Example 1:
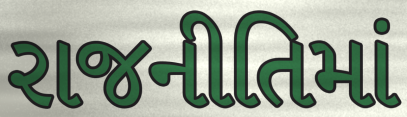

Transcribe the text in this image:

રાજનીતિમાં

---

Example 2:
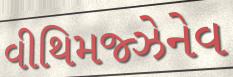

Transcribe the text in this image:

વીથિમજ્ઝેનેવ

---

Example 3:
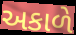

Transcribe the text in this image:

અકાળે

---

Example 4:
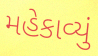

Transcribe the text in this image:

મહેકાવ્યું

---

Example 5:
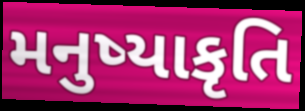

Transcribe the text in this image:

મનુષ્યાકૃતિ